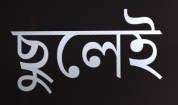
ছুলেই